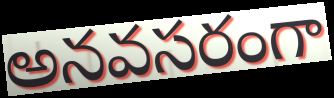
అనవసరంగా